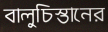
বালুচিস্তানের